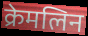
क्रेमलिन